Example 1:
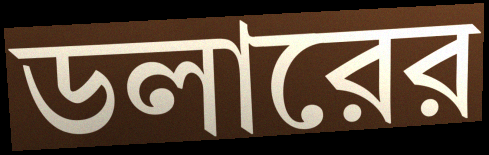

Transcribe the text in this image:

ডলারের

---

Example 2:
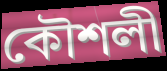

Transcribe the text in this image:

কৌশলী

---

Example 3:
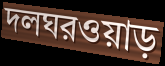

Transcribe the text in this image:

দলঘরওয়াড়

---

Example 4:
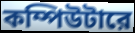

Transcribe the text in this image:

কম্পিউটারে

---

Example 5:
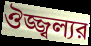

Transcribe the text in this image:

ঔজ্জ্বল্যর